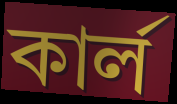
কার্ল